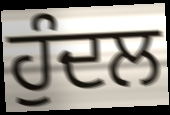
ਹੁੰਦਲ